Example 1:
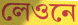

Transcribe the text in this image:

লেওনে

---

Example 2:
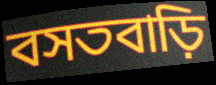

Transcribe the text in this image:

বসতবাড়ি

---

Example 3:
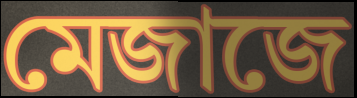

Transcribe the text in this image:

মেজাজে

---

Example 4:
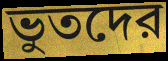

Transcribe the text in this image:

ভুতদের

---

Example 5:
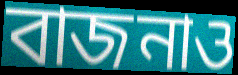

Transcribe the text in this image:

বাজনাও